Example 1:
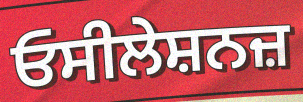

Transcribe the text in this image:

ਓਸੀਲੇਸ਼ਨਜ਼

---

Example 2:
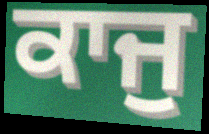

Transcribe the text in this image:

ਕਾਜੁ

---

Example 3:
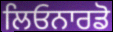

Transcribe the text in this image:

ਲਿਓਨਾਰਡੋ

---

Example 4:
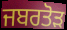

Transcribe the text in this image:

ਜਬਰਤੋੜ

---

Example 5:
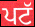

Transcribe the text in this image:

ਪਟੱ